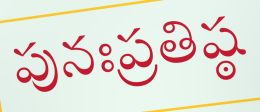
పునఃప్రతిష్ఠ